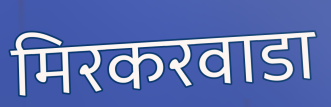
मिरकरवाडा